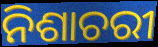
ନିଶାଚରୀ